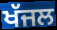
ਖੱਜਲ